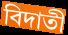
বিদাতী